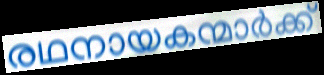
രഥനായകന്മാർക്ക്